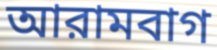
আরামবাগ